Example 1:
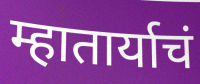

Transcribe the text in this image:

म्हातार्याचं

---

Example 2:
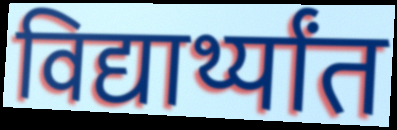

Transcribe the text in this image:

विद्यार्थ्यांत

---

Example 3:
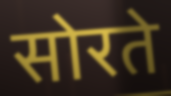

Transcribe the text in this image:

सोरते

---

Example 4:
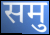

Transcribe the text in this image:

समु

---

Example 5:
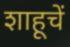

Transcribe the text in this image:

शाहूचें